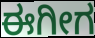
ಈಗೀಗ